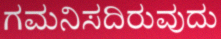
ಗಮನಿಸದಿರುವುದು